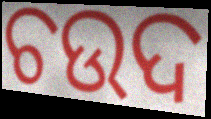
ଚଉଦ